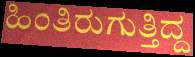
ಹಿಂತಿರುಗುತ್ತಿದ್ದ